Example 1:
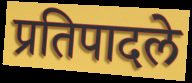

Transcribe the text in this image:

प्रतिपादले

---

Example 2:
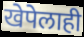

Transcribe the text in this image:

खेपेलाही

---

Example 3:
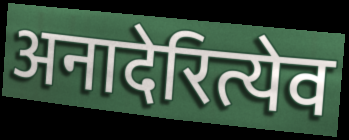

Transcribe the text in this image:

अनादेरित्येव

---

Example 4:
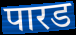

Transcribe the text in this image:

पारड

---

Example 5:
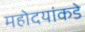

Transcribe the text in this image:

महोदयांकडे